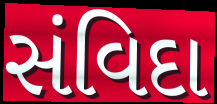
સંવિદા